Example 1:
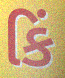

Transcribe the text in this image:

કિં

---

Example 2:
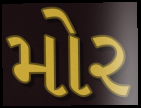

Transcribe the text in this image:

મોર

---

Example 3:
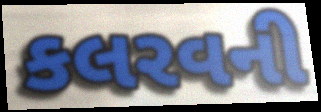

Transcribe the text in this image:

કલરવની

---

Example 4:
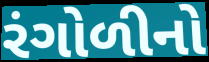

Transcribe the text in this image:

રંગોળીનો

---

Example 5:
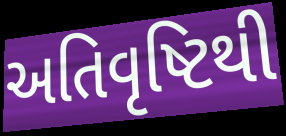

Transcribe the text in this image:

અતિવૃષ્ટિથી